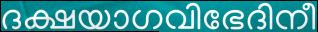
ദക്ഷയാഗവിഭേദിനീ